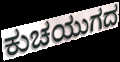
ಕುಚಯುಗದ